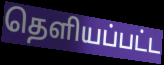
தெளியப்பட்ட